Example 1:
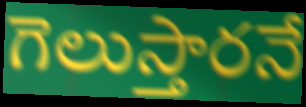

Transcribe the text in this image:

గెలుస్తారనే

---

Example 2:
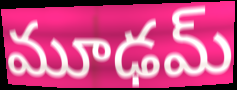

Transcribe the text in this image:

మూఢమ్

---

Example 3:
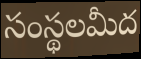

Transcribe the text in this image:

సంస్థలమీద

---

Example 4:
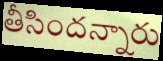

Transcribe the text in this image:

తీసిందన్నారు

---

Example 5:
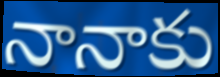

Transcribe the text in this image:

నానాకు